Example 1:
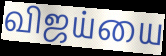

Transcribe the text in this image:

விஜய்யை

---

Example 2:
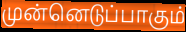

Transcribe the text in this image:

முன்னெடுப்பாகும்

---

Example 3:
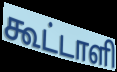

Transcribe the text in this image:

கூட்டாளி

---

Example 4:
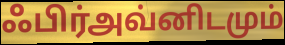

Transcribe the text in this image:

ஃபிர்அவ்னிடமும்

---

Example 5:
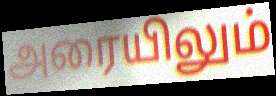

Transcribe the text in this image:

அரையிலும்